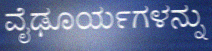
ವೈಢೂರ್ಯಗಳನ್ನು